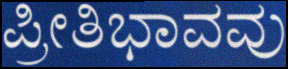
ಪ್ರೀತಿಭಾವವು